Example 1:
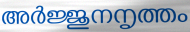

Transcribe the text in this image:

അർജ്ജുനനൃത്തം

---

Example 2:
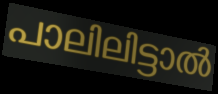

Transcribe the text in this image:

പാലിലിട്ടാൽ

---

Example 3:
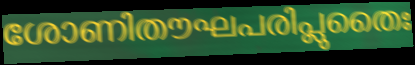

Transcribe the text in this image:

ശോണിതൗഘപരിപ്ലുതൈഃ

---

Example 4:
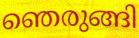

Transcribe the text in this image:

ഞെരുങ്ങി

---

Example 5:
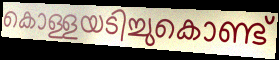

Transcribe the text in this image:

കൊള്ളയടിച്ചുകൊണ്ട്